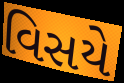
વિસયે